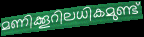
മണിക്കൂറിലധികമുണ്ട്